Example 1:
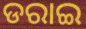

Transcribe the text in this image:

ଡରାଇ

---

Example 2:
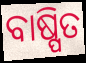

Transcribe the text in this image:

ବାଷ୍ପିତ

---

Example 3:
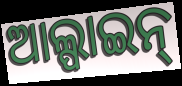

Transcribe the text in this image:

ଆଲ୍ପାଇନ୍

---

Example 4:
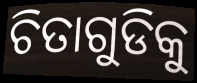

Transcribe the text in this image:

ଚିତାଗୁଡିକୁ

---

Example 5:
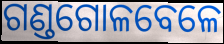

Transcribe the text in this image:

ଗଣ୍ଡଗୋଳବେଳେ